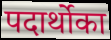
पदार्थोका